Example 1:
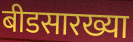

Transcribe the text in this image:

बीडसारख्या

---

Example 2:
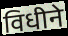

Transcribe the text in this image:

विधीने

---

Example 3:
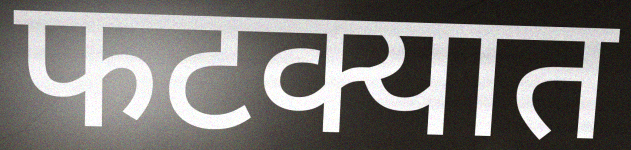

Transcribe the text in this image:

फटक्यात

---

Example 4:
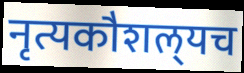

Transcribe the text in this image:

नृत्यकौशल्यच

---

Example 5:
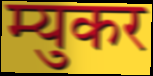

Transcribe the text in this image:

म्युकर